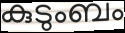
കുടുംബം